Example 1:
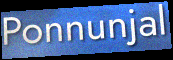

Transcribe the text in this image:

Ponnunjal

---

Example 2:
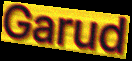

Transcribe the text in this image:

Garud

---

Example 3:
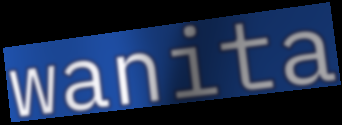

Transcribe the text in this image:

wanita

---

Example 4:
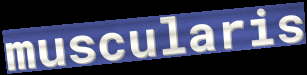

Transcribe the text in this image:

muscularis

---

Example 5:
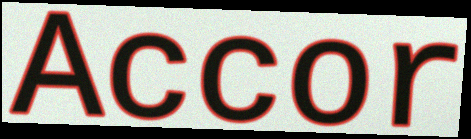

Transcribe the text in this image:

Accor